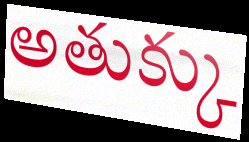
అతుక్కు